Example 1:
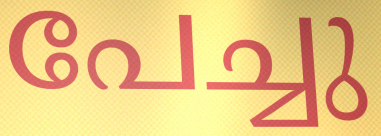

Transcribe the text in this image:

പേച്ചു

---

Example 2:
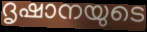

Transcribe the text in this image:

ദൃഷാനയുടെ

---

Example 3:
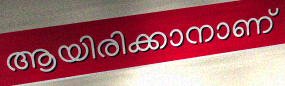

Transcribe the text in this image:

ആയിരിക്കാനാണ്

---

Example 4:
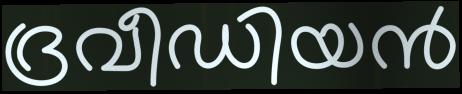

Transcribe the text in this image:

ദ്രവീഡിയൻ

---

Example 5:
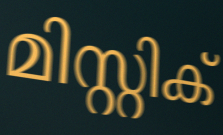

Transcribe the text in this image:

മിസ്റ്റിക്